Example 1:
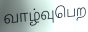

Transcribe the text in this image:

வாழ்வுபெற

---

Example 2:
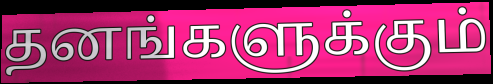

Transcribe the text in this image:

தனங்களுக்கும்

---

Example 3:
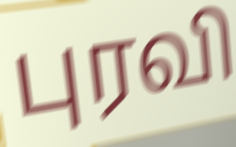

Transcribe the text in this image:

புரவி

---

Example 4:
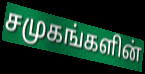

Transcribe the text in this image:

சமுகங்களின்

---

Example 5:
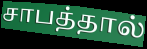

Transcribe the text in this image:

சாபத்தால்